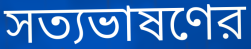
সত্যভাষণের